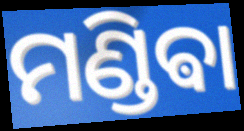
ମଣ୍ଡିଵା